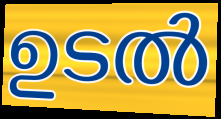
ഉടൽ